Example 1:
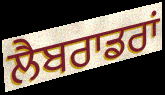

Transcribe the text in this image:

ਲੈਬਰਾਡਰਾਂ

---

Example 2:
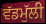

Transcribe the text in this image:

ਵੱਡਮੁੱਲੀ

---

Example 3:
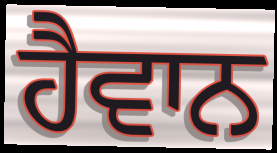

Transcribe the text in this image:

ਹੈਵਾਨ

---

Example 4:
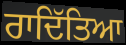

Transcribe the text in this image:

ਰਾਦਿੱਤਿਆ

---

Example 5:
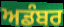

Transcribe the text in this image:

ਅਡੰਬਰ